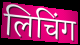
लिचिंग